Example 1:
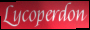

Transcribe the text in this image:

Lycoperdon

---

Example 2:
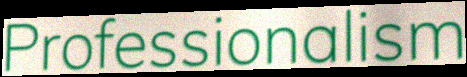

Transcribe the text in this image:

Professionalism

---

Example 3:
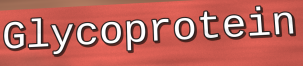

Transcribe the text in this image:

Glycoprotein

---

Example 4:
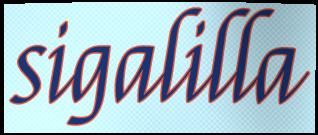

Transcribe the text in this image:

sigalilla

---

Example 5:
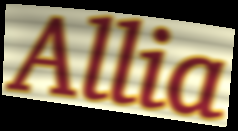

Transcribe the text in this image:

Allia